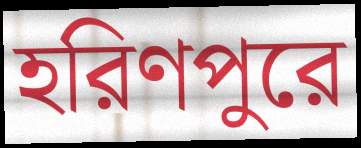
হরিণপুরে